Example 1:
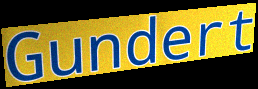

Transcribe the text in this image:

Gundert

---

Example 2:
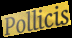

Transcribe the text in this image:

Pollicis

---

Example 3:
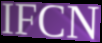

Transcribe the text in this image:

IFCN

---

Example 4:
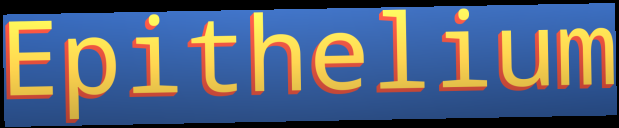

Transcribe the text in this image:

Epithelium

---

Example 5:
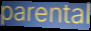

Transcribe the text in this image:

parental